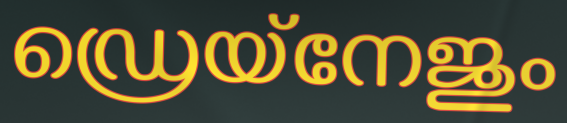
ഡ്രെയ്നേജും